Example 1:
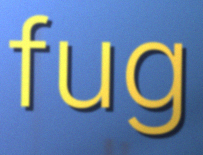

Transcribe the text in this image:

fug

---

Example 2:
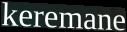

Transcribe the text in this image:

keremane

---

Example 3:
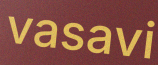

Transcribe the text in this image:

vasavi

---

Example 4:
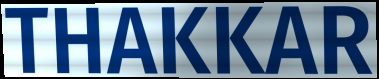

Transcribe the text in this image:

THAKKAR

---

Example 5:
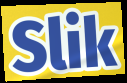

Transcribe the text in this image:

Slik